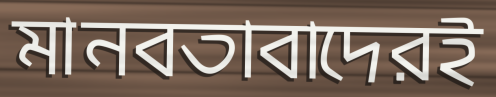
মানবতাবাদেরই